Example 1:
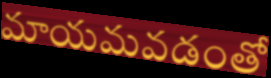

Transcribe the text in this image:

మాయమవడంతో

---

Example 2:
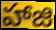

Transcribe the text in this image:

హాజి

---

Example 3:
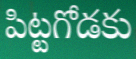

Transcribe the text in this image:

పిట్టగోడకు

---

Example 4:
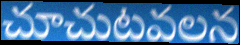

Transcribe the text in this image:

చూచుటవలన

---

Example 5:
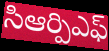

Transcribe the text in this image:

సిఆర్పిఎఫ్